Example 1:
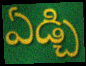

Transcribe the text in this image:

ఏడ్చి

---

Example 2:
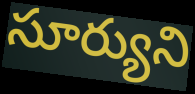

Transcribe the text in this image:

సూర్యుని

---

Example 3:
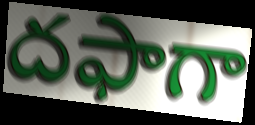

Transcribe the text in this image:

దఫాగా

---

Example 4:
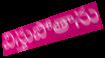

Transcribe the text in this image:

విస్తుపోతాను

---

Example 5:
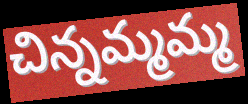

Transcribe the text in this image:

చిన్నమ్మమ్మ